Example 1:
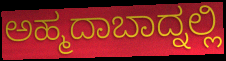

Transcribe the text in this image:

ಅಹ್ಮದಾಬಾದ್ನಲ್ಲಿ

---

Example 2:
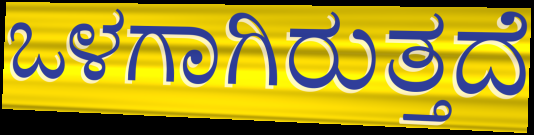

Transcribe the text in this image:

ಒಳಗಾಗಿರುತ್ತದೆ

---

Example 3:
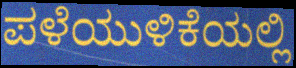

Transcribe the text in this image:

ಪಳೆಯುಳಿಕೆಯಲ್ಲಿ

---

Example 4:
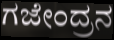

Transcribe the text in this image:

ಗಜೇಂದ್ರನ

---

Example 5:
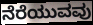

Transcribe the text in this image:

ನೆರೆಯುವವು